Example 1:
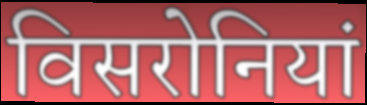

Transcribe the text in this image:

विसरोनियां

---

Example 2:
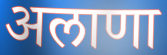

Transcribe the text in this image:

अलाणा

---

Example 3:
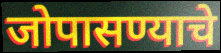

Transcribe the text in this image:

जोपासण्याचे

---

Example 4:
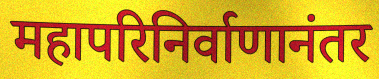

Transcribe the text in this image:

महापरिनिर्वाणानंतर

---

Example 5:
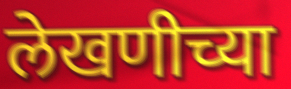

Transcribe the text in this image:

लेखणीच्या